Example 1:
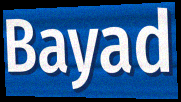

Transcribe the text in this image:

Bayad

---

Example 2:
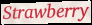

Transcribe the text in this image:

Strawberry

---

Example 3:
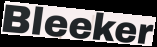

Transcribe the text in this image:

Bleeker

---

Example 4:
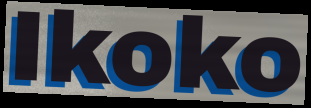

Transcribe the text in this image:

Ikoko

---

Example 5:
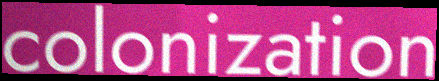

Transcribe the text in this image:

colonization